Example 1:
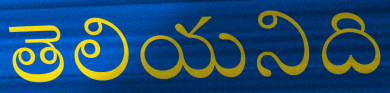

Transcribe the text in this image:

తెలియనిది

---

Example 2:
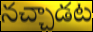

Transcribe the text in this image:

నచ్చాడట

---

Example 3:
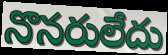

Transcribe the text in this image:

నొనరులేదు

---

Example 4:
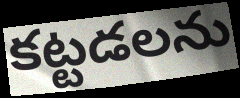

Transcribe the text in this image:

కట్టడలను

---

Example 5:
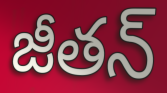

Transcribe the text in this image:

జీతన్